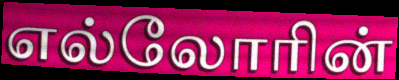
எல்லோரின்